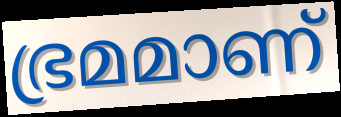
ഭ്രമമാണ്